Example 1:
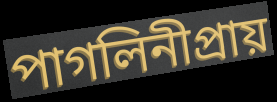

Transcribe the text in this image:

পাগলিনীপ্রায়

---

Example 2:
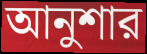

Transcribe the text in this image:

আনুশার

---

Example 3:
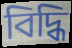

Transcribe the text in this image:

বিদ্ধি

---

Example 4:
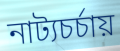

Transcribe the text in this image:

নাট্যচর্চায়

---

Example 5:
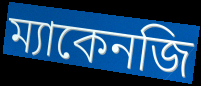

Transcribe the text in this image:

ম্যাকেনজি